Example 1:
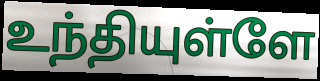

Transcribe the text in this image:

உந்தியுள்ளே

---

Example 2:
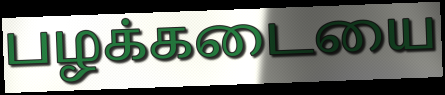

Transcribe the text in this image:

பழக்கடையை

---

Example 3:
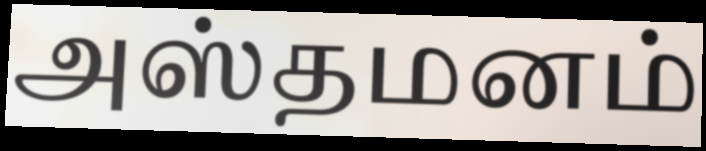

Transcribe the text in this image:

அஸ்தமனம்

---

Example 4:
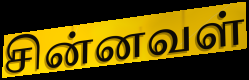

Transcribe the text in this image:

சின்னவள்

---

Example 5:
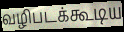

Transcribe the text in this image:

வழிபடக்கூடிய